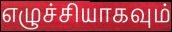
எழுச்சியாகவும்